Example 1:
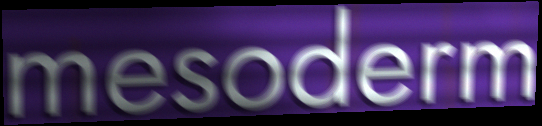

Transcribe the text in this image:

mesoderm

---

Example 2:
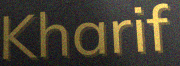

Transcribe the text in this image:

Kharif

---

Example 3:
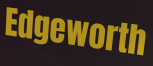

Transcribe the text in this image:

Edgeworth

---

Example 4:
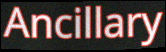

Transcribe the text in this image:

Ancillary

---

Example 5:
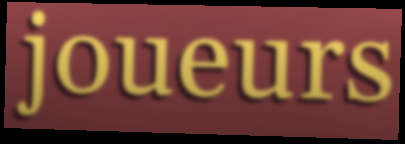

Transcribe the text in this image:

joueurs